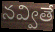
నవ్వితే